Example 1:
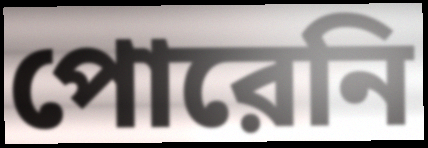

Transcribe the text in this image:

পোরেনি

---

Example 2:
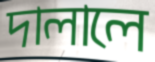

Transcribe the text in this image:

দালালে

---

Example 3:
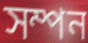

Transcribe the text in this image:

সম্পন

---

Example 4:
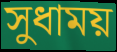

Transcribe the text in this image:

সুধাময়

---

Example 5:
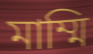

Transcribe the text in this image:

মাম্মি